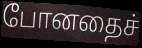
போனதைச்